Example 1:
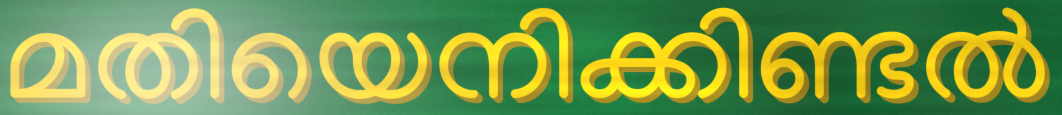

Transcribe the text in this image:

മതിയെനിക്കിണ്ടൽ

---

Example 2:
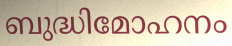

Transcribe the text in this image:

ബുദ്ധിമോഹനം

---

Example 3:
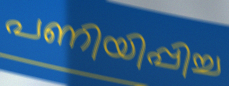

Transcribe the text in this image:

പണിയിപ്പിച്ച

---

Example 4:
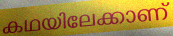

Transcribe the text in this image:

കഥയിലേക്കാണ്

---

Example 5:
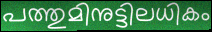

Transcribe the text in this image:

പത്തുമിനുട്ടിലധികം